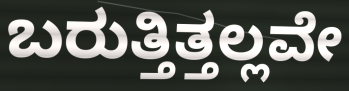
ಬರುತ್ತಿತ್ತಲ್ಲವೇ